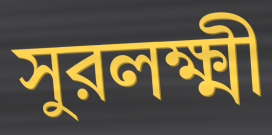
সুরলক্ষ্মী